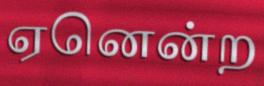
ஏனென்ற